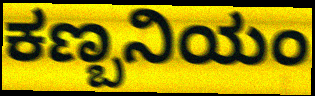
ಕಣ್ಬನಿಯಂ